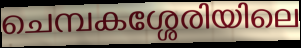
ചെമ്പകശ്ശേരിയിലെ